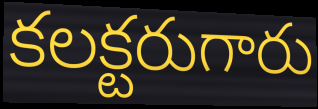
కలక్టరుగారు